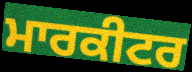
ਮਾਰਕੀਟਰ